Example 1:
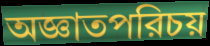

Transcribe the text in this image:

অজ্ঞাতপরিচয়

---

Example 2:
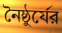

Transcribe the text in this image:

নৈষ্ঠুর্যের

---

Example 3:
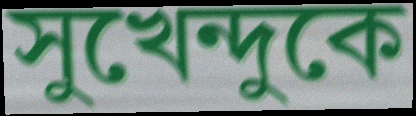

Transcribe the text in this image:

সুখেন্দুকে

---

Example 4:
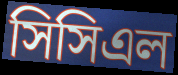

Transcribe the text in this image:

সিসিএল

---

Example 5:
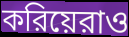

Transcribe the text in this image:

করিয়েরাও